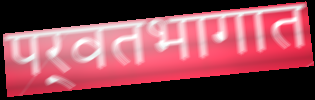
पर्वतभागात